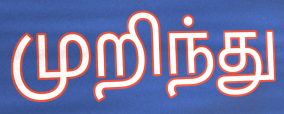
முறிந்து